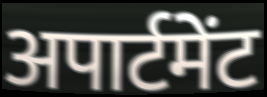
अपार्टमेंट